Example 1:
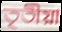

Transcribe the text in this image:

তৃতীয়া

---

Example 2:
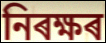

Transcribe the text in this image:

নিৰক্ষৰ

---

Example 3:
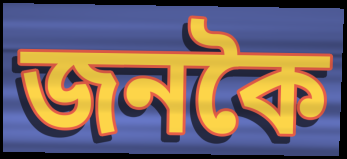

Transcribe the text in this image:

জনকৈ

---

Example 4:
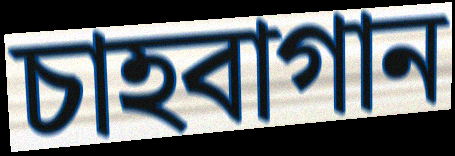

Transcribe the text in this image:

চাহবাগান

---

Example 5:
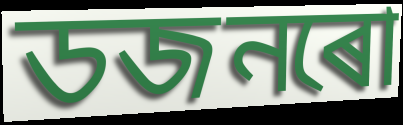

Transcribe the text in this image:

ডজনৰো